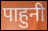
पाहुनी